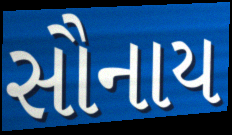
સૌનાય